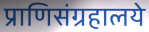
प्राणिसंग्रहालये